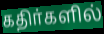
கதிர்களில்